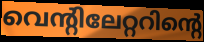
വെന്റിലേറ്ററിന്റെ